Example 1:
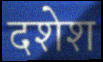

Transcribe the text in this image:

दशेश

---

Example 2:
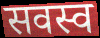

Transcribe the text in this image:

सवस्व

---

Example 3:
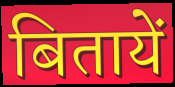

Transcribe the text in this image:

बितायें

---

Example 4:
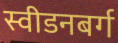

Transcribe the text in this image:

स्वीडनबर्ग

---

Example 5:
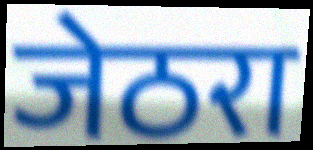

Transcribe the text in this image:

जेठरा